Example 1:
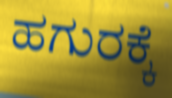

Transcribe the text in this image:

ಹಗುರಕ್ಕೆ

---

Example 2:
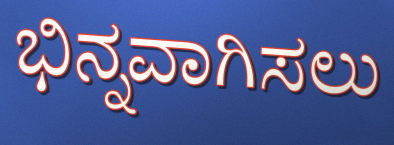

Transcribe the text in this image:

ಭಿನ್ನವಾಗಿಸಲು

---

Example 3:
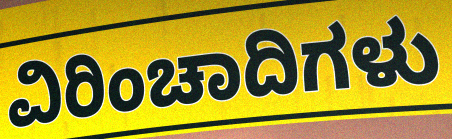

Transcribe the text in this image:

ವಿರಿಂಚಾದಿಗಳು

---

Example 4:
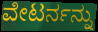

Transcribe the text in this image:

ವೇಟರ್ನನ್ನು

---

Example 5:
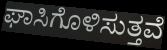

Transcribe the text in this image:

ಘಾಸಿಗೊಳಿಸುತ್ತವೆ